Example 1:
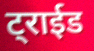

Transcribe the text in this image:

ट्राईड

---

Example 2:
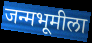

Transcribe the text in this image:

जन्मभूमीला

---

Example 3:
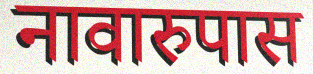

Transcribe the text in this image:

नावारुपास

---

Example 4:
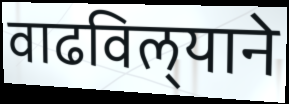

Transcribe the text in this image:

वाढविल्याने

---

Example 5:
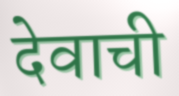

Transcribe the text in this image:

देवाची